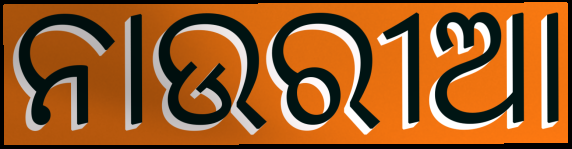
ନାଉରୀଆ